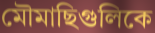
মৌমাছিগুলিকে